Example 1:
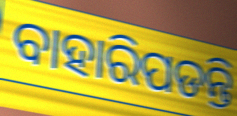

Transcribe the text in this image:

ବାହାରିପଡନ୍ତି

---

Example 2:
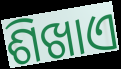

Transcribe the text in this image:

ଶିଖାଏ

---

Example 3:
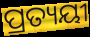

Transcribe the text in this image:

ପ୍ରତ୍ୟୟୀ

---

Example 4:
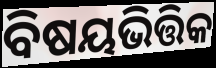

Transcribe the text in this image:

ବିଷୟଭିତ୍ତିକ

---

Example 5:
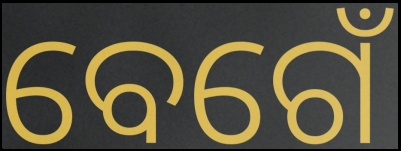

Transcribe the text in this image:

ବେଗେଁ